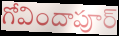
గోవిందాపూర్